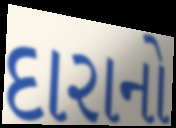
દારાનો